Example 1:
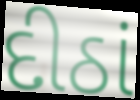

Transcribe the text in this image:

દીઠાં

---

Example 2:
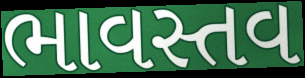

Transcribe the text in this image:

ભાવસ્તવ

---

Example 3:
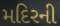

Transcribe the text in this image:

મદિરની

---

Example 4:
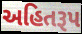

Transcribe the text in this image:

અહિતરૂપ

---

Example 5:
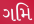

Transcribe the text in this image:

ગમિ